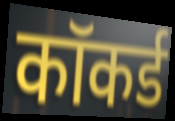
कॉकर्ड